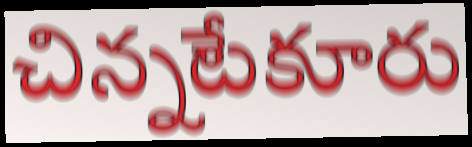
చిన్నటేకూరు